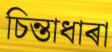
চিন্তাধাৰা